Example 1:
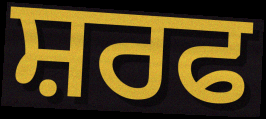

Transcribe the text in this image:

ਸ਼ਰਫ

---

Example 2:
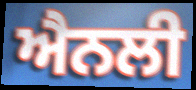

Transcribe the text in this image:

ਐਨਲੀ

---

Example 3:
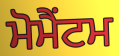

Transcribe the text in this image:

ਮੋਮੈਂਟਮ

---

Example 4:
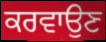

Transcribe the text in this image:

ਕਰਵਾਉਣ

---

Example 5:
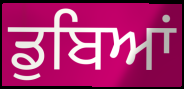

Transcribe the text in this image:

ਡੁਬਿਆਂ